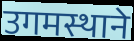
उगमस्थाने